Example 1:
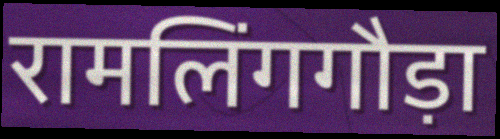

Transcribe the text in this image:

रामलिंगगौड़ा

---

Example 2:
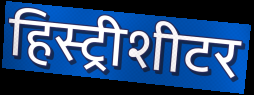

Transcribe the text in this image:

हिस्ट्रीशीटर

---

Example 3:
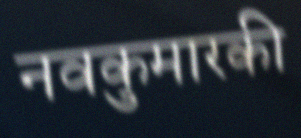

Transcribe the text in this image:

नवकुमारकी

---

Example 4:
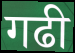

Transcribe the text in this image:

गढी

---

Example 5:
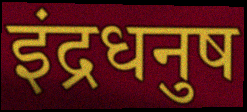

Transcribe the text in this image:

इंद्रधनुष